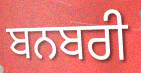
ਬਨਬਰੀ